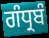
ਗੰਧ੍ਰਬੰ